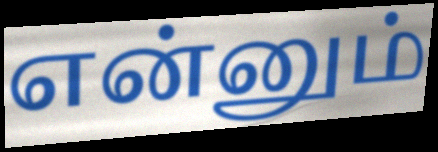
என்னும்